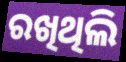
ରଖିଥିଲି